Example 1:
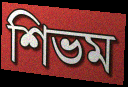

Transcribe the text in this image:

শিভম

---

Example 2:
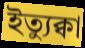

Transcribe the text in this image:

ইত্যুক্বা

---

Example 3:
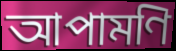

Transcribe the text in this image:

আপামণি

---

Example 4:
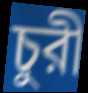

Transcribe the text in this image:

চুরী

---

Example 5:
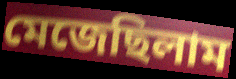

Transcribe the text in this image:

মেজেছিলাম